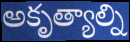
అకృత్యాల్ని